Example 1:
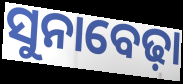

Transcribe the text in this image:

ସୁନାବେଢ଼ା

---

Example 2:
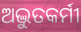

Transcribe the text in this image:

ଅଦ୍ଭୁତକର୍ମୀ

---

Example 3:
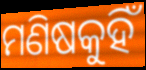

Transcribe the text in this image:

ମଣିଷକୁହିଁ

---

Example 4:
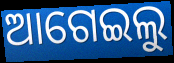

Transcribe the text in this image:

ଆଗେଇଲୁ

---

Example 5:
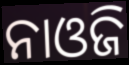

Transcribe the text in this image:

ନାଓଜି